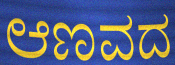
ಆಣವದ